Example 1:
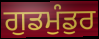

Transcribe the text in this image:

ਗੁਡਮੁੰਡੁਰ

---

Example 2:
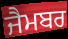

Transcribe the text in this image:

ਜੈਮਬਰ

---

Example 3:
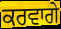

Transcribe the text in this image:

ਕਰਵਾਗੇ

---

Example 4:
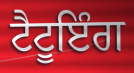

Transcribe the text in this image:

ਟੈਟੂਇੰਗ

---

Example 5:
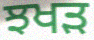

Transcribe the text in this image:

ਝਖੜ